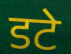
डटे